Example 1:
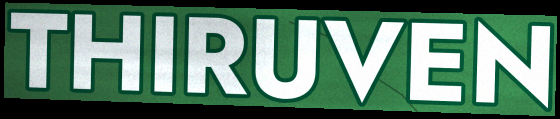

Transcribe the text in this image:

THIRUVEN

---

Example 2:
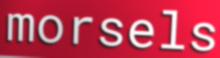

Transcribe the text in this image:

morsels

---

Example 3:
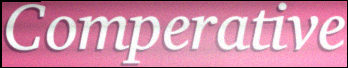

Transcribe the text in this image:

Comperative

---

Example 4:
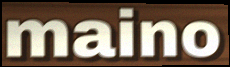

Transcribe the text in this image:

maino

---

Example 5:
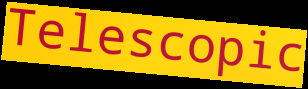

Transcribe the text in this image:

Telescopic